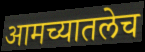
आमच्यातलेच